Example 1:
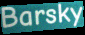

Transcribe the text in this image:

Barsky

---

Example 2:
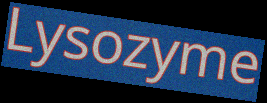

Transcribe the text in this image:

Lysozyme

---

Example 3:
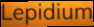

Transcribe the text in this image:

Lepidium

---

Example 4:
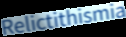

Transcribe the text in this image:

Relictithismia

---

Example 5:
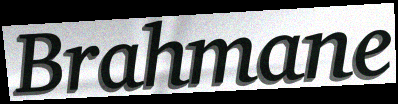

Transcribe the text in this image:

Brahmane